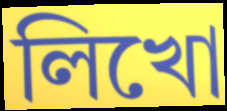
লিখো